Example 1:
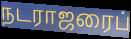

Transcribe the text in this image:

நடராஜரைப்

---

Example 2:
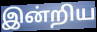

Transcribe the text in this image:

இன்றிய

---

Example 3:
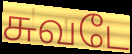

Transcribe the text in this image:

சுவடே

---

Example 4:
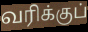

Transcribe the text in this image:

வரிக்குப்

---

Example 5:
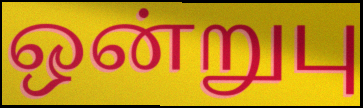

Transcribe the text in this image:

ஒன்றுபு